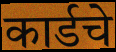
कार्डचे